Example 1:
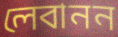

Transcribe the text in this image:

লেবানন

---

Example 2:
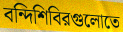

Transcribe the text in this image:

বন্দিশিবিরগুলোতে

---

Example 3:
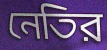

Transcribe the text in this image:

নেতির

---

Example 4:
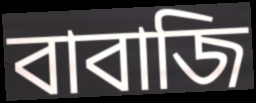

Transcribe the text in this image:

বাবাজি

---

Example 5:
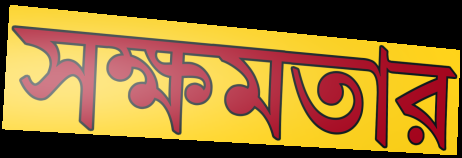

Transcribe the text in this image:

সক্ষমতার